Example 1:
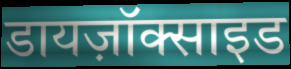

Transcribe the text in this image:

डायज़ॉक्साइड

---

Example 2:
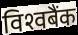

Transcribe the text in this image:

विश्वबैंक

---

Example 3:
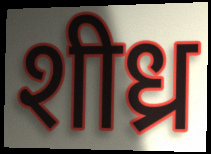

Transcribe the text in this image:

शीध्र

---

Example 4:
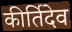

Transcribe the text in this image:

कीर्तिदेव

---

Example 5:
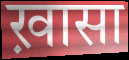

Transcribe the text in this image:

ख़ासा